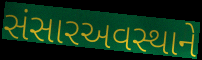
સંસારઅવસ્થાને